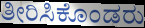
ತೀರಿಸಿಕೊಂಡರು